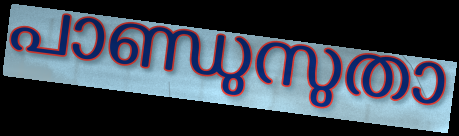
പാണ്ഡുസുതാ